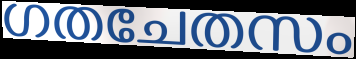
ഗതചേതസം